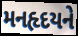
મનહૃદયને